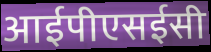
आईपीएसईसी